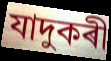
যাদুকৰী